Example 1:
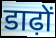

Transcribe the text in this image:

डाढ़ों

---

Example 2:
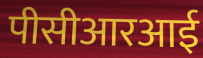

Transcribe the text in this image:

पीसीआरआई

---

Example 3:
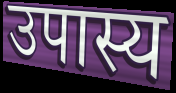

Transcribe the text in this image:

उपास्य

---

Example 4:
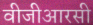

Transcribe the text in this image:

वीजीआरसी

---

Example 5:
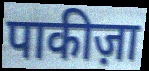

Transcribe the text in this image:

पाकीज़ा